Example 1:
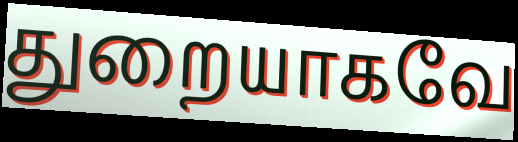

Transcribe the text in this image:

துறையாகவே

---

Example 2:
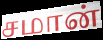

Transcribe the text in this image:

சமான்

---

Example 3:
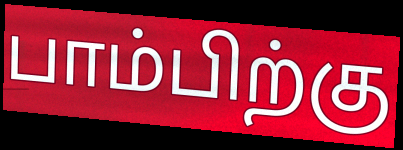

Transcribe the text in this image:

பாம்பிற்கு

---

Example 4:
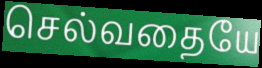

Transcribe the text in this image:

செல்வதையே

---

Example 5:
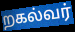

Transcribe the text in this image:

றகல்வர்